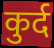
कुर्द